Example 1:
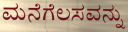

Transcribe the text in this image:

ಮನೆಗೆಲಸವನ್ನು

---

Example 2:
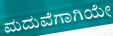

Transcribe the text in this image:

ಮದುವೆಗಾಗಿಯೇ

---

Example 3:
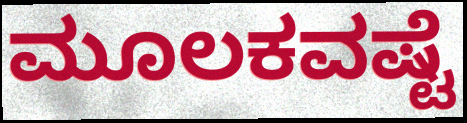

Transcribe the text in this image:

ಮೂಲಕವಷ್ಟೆ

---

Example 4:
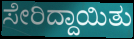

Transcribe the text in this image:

ಸೇರಿದ್ದಾಯಿತು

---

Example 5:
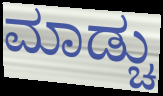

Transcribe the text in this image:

ಮಾಡ್ಚು